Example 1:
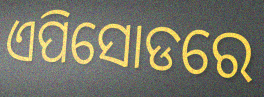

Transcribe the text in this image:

ଏପିସୋଡରେ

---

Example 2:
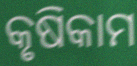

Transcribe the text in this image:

କୃଷିକାମ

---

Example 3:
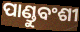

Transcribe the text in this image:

ପାଣ୍ଡୁବଂଶୀ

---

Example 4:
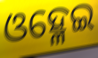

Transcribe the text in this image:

ଓହ୍ଳେଇ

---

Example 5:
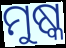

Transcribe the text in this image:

ମୁଷ୍କ